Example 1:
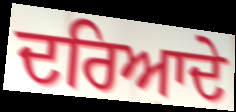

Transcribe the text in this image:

ਦਰਿਆਦੇ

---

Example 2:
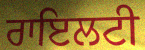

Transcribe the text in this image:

ਰਾਇਲਟੀ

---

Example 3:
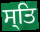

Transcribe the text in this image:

ਸ੍ਤਿ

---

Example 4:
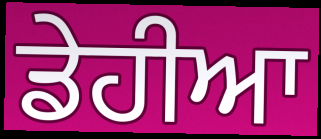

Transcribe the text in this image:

ਡੇਹੀਆ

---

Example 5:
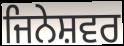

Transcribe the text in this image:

ਜਿਨੇਸ਼ਵਰ